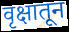
वृक्षातून